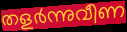
തളർന്നുവീണ